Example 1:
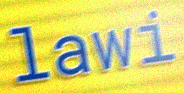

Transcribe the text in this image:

lawi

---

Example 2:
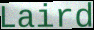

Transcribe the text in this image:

Laird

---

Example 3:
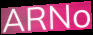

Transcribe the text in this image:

ARNo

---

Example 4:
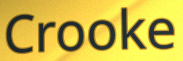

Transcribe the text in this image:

Crooke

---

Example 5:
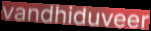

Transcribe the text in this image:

vandhiduveer